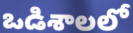
ఒడిశాలలో